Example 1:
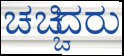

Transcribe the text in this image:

ಚಚ್ಚಿದರು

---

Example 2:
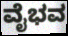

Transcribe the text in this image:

ವೈಭವ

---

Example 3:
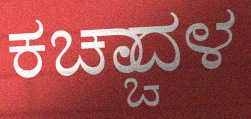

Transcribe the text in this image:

ಕಚ್ಚಾದಳ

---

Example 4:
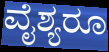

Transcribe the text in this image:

ವೈಶ್ಯರೂ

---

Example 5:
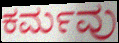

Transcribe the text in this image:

ಕರ್ಮವು